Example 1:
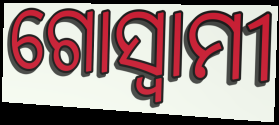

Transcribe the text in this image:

ଗୋସ୍ଵାମୀ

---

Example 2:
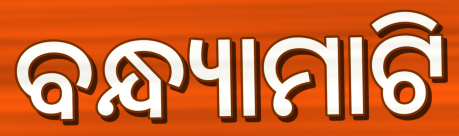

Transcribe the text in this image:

ବନ୍ଧ୍ୟାମାଟି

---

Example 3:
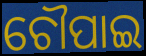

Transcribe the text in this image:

ଚୌପାଇ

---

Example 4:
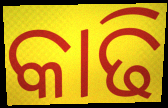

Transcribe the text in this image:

କାଢି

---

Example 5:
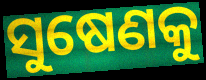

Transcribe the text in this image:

ସୁଷେଣକୁ